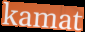
kamat